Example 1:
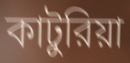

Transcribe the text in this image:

কাটুরিয়া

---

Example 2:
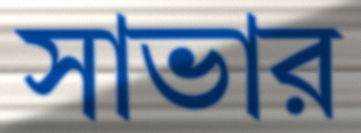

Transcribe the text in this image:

সাভার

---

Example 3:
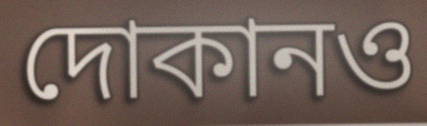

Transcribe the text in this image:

দোকানও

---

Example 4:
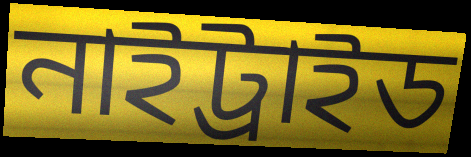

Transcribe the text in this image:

নাইট্রাইড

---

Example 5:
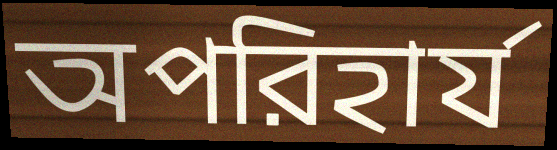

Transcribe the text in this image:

অপরিহার্য